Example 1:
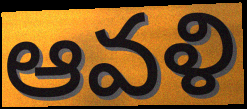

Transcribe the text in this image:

ఆవళి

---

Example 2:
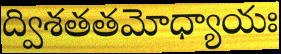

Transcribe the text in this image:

ద్విశతతమోధ్యాయః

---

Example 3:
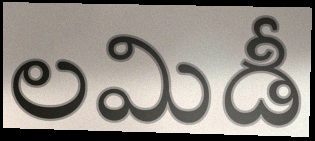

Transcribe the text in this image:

లమిడీ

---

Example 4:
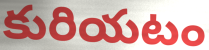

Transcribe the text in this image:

కురియటం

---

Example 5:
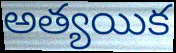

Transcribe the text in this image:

అత్యయిక